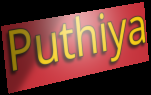
Puthiya